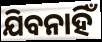
ଯିବନାହିଁ